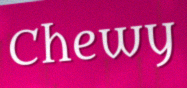
Chewy